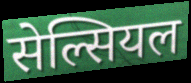
सेल्सियल